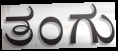
ತಂಗು